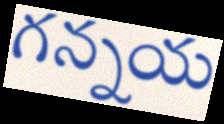
గన్నయ